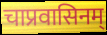
चाप्रवासिनम्